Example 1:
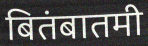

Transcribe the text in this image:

बितंबातमी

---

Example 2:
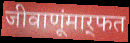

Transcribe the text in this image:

जीवाणूंमार्फत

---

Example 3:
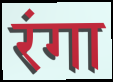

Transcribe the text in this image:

रंगा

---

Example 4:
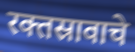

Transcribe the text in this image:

रक्तस्रावाचे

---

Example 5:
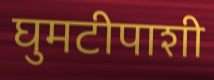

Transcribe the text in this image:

घुमटीपाशी